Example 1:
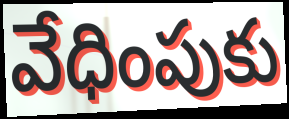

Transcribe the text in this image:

వేధింపుకు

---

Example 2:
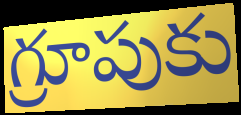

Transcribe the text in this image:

గ్రూపుకు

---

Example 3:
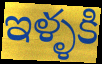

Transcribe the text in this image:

ఇళ్ళకి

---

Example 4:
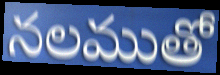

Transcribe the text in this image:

నలముతో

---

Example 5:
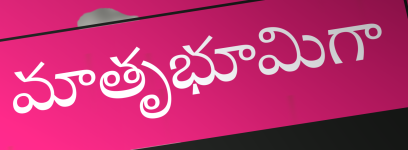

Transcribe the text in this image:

మాతృభూమిగా